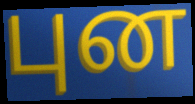
புன